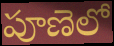
పూణెలో